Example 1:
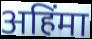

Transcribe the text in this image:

अहिंमा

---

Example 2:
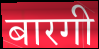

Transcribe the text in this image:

बारगी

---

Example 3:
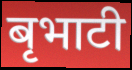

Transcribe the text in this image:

बृभाटी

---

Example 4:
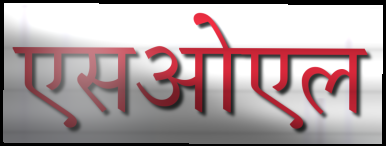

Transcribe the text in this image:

एसओएल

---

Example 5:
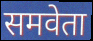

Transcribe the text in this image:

समवेता